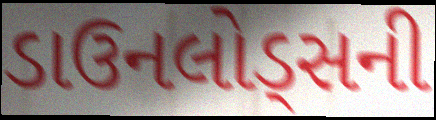
ડાઉનલોડ્સની